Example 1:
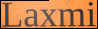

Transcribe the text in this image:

Laxmi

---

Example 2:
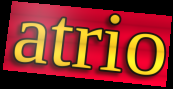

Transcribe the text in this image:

atrio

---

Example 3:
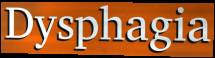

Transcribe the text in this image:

Dysphagia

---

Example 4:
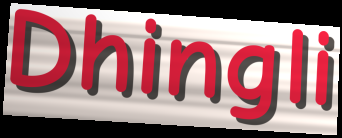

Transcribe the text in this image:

Dhingli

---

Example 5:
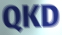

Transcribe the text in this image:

QKD